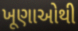
ખૂણાઓથી